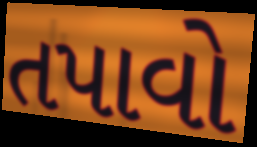
તપાવો